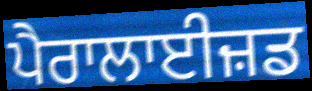
ਪੈਰਾਲਾਈਜ਼ਡ